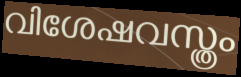
വിശേഷവസ്ത്രം